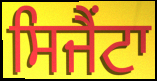
ਸਿਜੈਂਟਾ